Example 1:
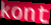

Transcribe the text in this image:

kont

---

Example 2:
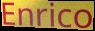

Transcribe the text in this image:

Enrico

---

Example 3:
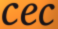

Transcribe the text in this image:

cec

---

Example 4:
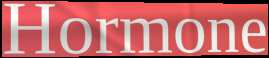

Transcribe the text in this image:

Hormone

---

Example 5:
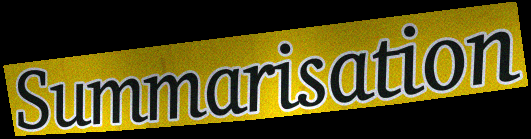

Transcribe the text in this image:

Summarisation